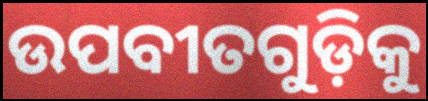
ଉପବୀତଗୁଡ଼ିକୁ